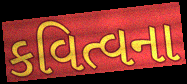
કવિત્વના